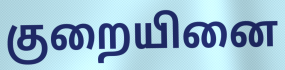
குறையினை